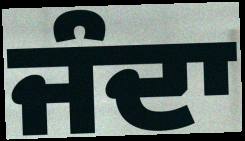
ਜੰਦਾ